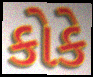
કોકે